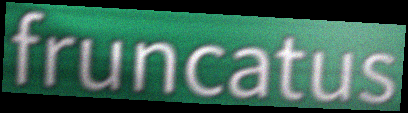
fruncatus